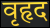
वृहृद